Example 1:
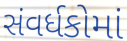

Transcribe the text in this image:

સંવર્ધકોમાં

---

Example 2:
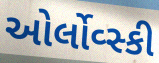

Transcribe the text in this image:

ઓર્લોવ્સ્કી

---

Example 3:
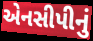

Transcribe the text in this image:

એનસીપીનું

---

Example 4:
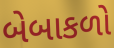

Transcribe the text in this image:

બેબાકળો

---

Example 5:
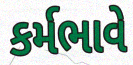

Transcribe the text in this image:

કર્મભાવે